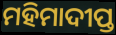
ମହିମାଦୀପ୍ତ